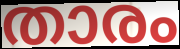
താരം